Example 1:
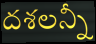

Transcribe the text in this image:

దశలన్నీ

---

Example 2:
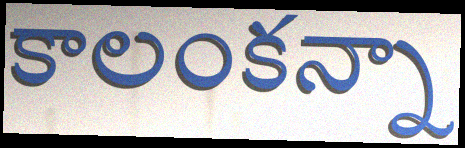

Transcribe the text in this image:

కాలంకన్నా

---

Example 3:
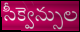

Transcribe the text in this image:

సీక్వెన్సుల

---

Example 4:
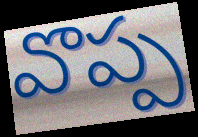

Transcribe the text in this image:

వొప్ప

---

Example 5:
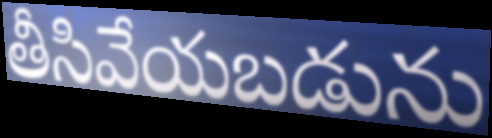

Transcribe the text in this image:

తీసివేయబడును